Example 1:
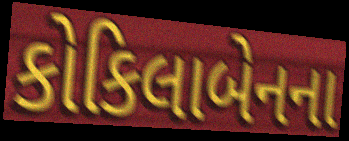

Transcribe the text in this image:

કોકિલાબેનના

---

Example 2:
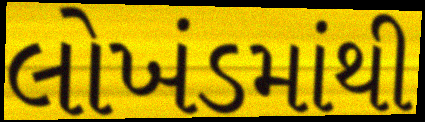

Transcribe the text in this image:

લોખંડમાંથી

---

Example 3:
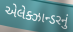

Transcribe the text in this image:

એલેક્ઝાન્ડરનું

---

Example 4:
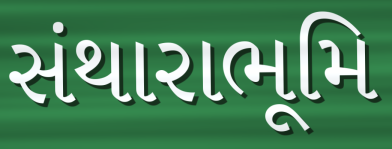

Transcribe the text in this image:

સંથારાભૂમિ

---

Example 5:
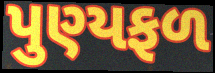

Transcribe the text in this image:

પુણ્યફળ